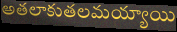
అతలాకుతలమయ్యాయి